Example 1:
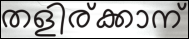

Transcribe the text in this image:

തളിര്ക്കാന്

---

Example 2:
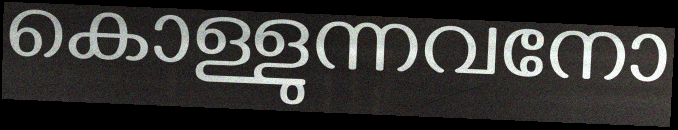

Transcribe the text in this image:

കൊള്ളുന്നവനോ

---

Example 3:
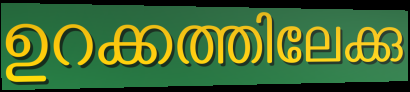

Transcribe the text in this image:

ഉറക്കത്തിലേക്കു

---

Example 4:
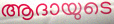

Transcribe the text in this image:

ആദായുടെ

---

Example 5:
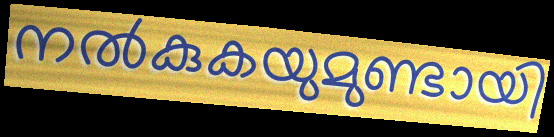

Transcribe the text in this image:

നൽകുകയുമുണ്ടായി